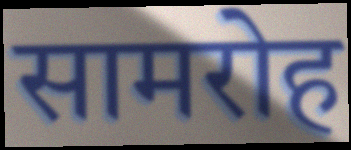
सामरोह